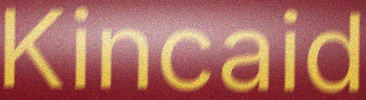
Kincaid